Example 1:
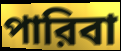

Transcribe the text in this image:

পারিবা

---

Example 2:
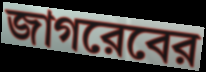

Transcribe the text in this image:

জাগরেবের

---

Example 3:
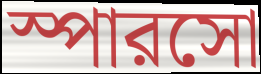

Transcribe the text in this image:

স্পারসো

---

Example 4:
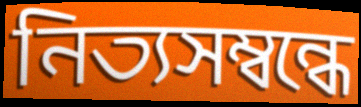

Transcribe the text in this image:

নিত্যসম্বন্ধে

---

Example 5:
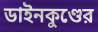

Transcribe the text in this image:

ডাইনকুণ্ডের